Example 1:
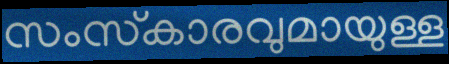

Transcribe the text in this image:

സംസ്‌കാരവുമായുള്ള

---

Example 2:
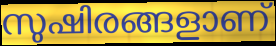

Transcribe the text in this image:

സുഷിരങ്ങളാണ്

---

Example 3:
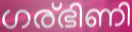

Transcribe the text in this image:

ഗര്ഭിണി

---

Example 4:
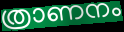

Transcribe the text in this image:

ത്രാണനം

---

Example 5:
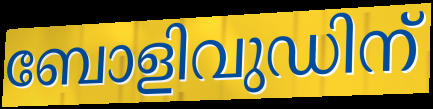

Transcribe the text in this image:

ബോളിവുഡിന്